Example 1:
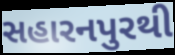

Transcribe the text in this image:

સહારનપુરથી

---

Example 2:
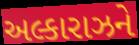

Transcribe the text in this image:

અલ્કારાઝને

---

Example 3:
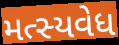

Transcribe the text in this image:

મત્સ્યવેધ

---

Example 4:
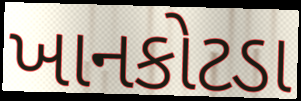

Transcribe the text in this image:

ખાનકોટડા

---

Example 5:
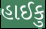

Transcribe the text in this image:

હાઈકુ